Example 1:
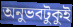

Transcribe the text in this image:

অনুভবটুকুই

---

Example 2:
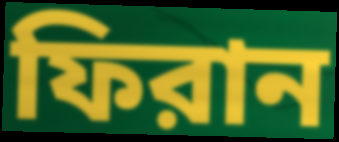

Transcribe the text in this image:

ফিরান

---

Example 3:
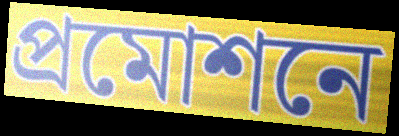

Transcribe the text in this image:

প্রমোশনে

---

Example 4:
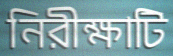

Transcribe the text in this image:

নিরীক্ষাটি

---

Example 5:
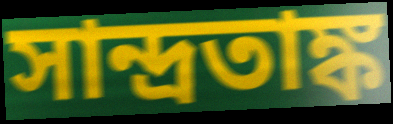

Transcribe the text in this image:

সান্দ্রতাঙ্ক